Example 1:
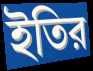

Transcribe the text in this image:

ইতির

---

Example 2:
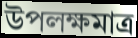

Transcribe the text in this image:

উপলক্ষমাত্র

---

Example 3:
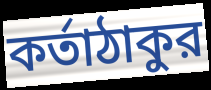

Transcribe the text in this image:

কর্তাঠাকুর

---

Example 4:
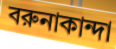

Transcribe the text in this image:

বরুনাকান্দা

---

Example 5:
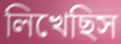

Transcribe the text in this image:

লিখেছিস